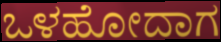
ಒಳಹೋದಾಗ